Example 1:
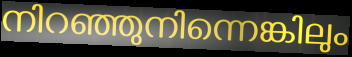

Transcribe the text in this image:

നിറഞ്ഞുനിന്നെങ്കിലും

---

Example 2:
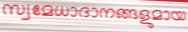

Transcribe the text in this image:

സ്വമേധാദാനങ്ങളുമായ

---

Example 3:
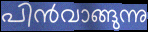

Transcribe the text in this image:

പിൻവാങ്ങുന്നു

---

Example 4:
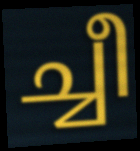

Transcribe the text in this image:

ച്ചീ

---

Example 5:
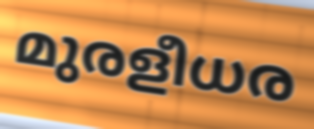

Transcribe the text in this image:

മുരളീധര